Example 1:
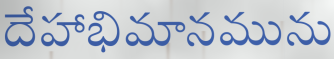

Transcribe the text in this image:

దేహాభిమానమును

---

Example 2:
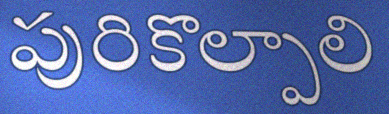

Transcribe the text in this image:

పురికొల్పాలి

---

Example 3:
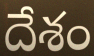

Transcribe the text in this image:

దేశం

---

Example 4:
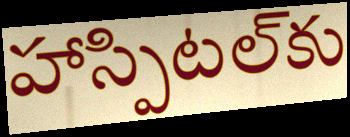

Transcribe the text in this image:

హాస్పిటల్‌కు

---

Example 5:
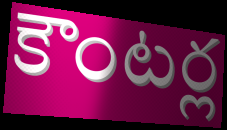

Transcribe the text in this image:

కౌంటర్ల